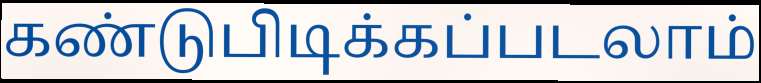
கண்டுபிடிக்கப்படலாம்